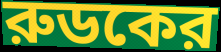
রুডকের